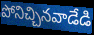
పోనిచ్చినవాడేడి